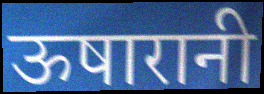
ऊषारानी